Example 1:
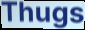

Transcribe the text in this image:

Thugs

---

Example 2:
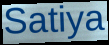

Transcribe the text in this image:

Satiya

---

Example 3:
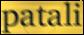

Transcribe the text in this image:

patali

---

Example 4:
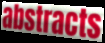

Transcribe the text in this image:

abstracts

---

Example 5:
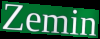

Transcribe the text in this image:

Zemin